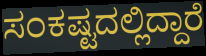
ಸಂಕಷ್ಟದಲ್ಲಿದ್ದಾರೆ